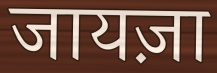
जायज़ा